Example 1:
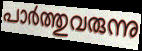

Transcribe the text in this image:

പാർത്തുവരുന്നു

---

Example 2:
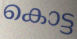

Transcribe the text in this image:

കൊട്ട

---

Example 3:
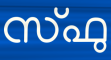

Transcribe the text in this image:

സ്ഫു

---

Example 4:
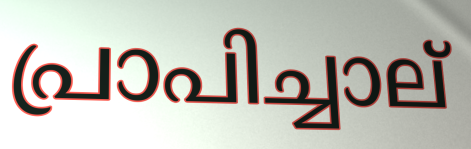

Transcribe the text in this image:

പ്രാപിച്ചാല്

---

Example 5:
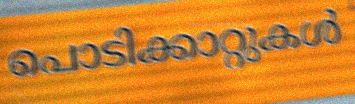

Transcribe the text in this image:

പൊടിക്കാറ്റുകൾ